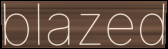
blazed